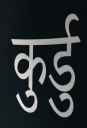
कुर्डु